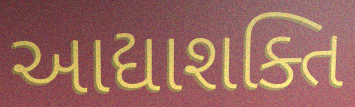
આદ્યાશક્તિ